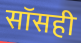
सॉसही